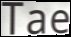
Tae